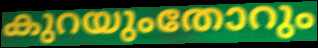
കുറയുംതോറും